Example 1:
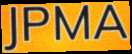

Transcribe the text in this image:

JPMA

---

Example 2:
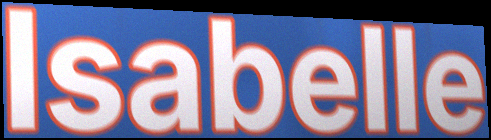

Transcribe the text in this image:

Isabelle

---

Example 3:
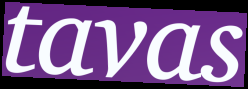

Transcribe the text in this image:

tavas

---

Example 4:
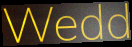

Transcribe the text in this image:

Wedd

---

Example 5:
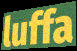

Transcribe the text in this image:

luffa